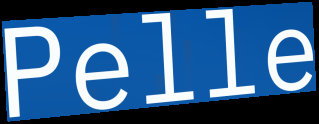
Pelle